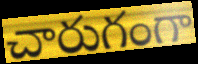
చారుగంగా